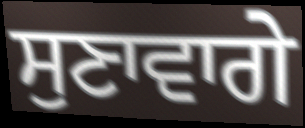
ਸੁਣਾਵਾਗੇ